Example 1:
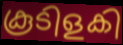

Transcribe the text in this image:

കൂടിളകി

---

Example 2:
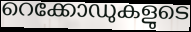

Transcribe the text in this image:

റെക്കോഡുകളുടെ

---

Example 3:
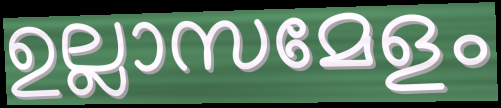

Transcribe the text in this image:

ഉല്ലാസമേളം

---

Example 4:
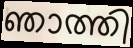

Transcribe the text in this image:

ഞാത്തി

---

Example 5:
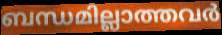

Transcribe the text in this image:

ബന്ധമില്ലാത്തവർ